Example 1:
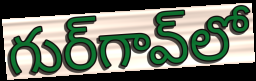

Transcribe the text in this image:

గుర్‌గావ్‌లో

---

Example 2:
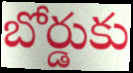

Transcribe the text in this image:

బోర్డుకు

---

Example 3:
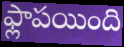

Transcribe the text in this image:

ఫ్లాపయింది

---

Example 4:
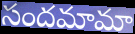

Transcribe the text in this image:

సందమామా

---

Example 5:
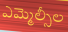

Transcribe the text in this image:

ఎమ్మెల్సీల